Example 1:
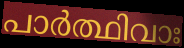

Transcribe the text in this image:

പാർത്ഥിവാഃ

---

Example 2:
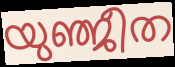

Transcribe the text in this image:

യുഞ്ജീത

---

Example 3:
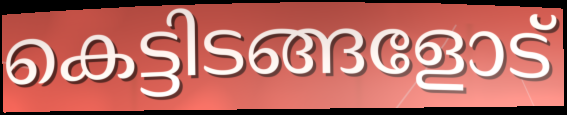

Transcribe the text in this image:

കെട്ടിടങ്ങളോട്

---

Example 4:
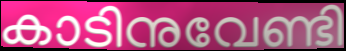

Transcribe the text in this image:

കാടിനുവേണ്ടി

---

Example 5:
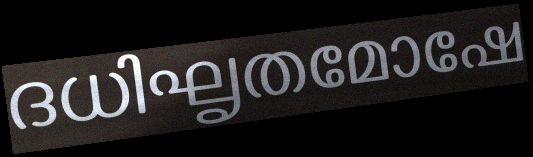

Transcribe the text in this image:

ദധിഘൃതമോഷേ